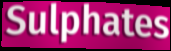
Sulphates